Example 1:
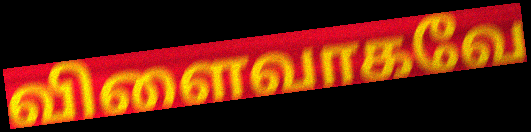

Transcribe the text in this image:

விளைவாகவே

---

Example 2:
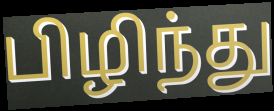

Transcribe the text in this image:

பிழிந்து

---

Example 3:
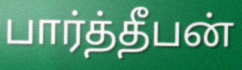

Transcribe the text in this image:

பார்த்தீபன்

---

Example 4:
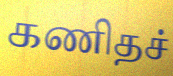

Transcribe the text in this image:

கணிதச்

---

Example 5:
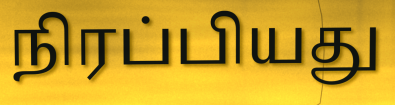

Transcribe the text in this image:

நிரப்பியது